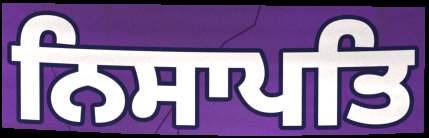
ਨਿਸਾਪਤਿ